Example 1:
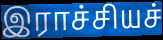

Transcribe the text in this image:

இராச்சியச்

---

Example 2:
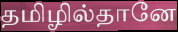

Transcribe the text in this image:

தமிழில்தானே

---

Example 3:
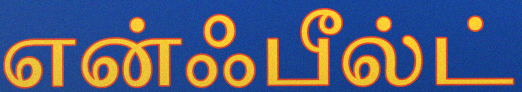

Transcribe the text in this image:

என்ஃபீல்ட்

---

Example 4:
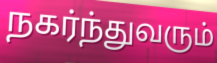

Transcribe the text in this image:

நகர்ந்துவரும்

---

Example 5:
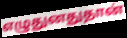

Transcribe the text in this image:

எழுதுனதுதான்